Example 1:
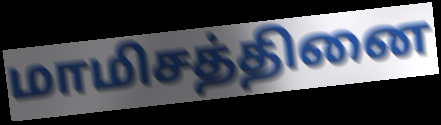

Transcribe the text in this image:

மாமிசத்தினை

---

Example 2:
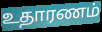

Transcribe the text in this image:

உதாரணம்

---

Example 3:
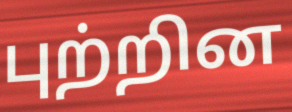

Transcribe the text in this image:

புற்றின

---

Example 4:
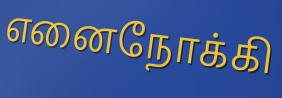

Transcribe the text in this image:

எனைநோக்கி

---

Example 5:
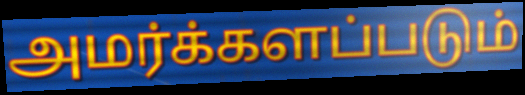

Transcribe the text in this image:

அமர்க்களப்படும்